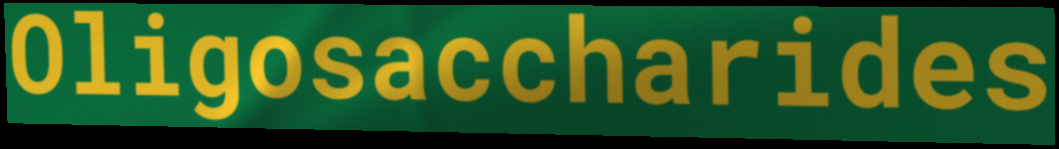
Oligosaccharides